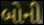
બોની